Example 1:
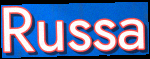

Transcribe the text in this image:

Russa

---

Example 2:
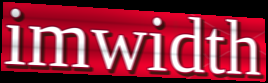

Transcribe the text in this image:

imwidth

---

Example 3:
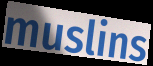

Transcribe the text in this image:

muslins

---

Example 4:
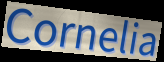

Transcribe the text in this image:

Cornelia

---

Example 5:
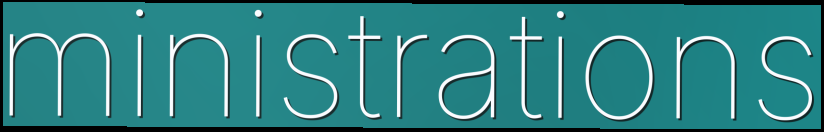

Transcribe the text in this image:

ministrations